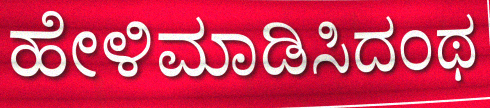
ಹೇಳಿಮಾಡಿಸಿದಂಥ